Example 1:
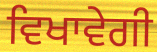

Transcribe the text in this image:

ਵਿਖਾਵੇਗੀ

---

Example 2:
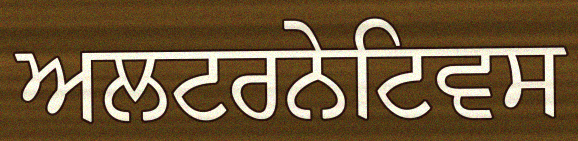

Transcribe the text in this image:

ਅਲਟਰਨੇਟਿਵਸ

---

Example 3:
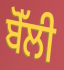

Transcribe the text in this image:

ਬੋੱਲੀ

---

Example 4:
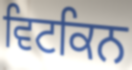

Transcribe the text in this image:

ਵਿਟਕਿਨ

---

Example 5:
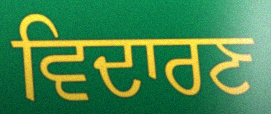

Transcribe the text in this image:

ਵਿਦਾਰਣ